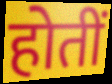
होतीं